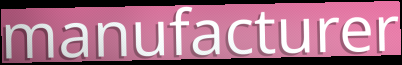
manufacturer